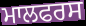
ਮਾਲਫਰਸ